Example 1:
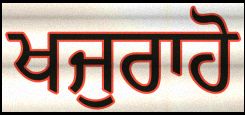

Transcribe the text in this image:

ਖਜੁਰਾਹੋ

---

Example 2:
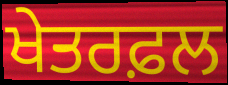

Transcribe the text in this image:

ਖੇਤਰਫ਼ਲ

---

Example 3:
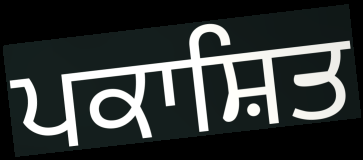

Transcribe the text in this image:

ਪਕਾਸ਼ਿਤ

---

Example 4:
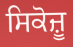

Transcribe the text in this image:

ਸਿਕੋਜ਼ੂ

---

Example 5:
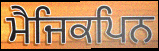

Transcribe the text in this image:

ਮੈਜਿਕਪਿਨ